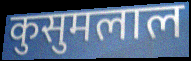
कुसुमलाल